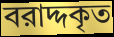
বরাদ্দকৃত